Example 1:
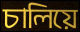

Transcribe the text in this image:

চালিয়ে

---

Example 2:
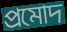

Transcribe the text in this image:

প্ৰমোদ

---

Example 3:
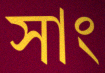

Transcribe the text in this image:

সাং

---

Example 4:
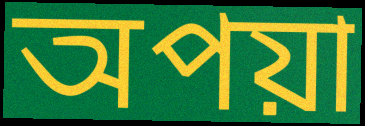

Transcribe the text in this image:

অপয়া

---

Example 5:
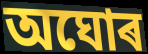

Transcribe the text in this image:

অঘোৰ